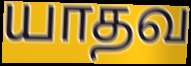
யாதவ